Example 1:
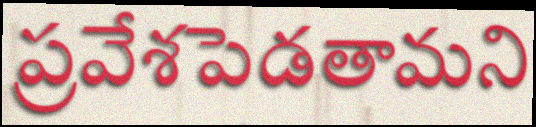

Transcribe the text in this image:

ప్రవేశపెడతామని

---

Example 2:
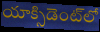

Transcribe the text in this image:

యాక్సిడెంట్‌లో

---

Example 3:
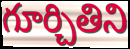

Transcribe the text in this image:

గూర్చితిని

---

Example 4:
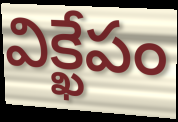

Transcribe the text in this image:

విక్ఖేపం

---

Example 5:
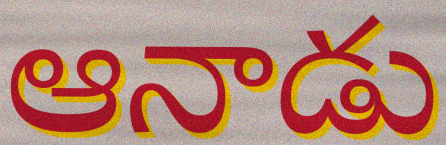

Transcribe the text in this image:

ఆనాడు